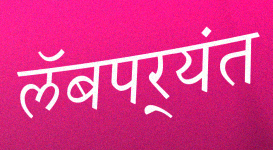
लॅबपर्यंत